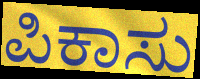
ಪಿಕಾಸು